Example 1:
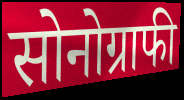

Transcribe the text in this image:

सोनोग्राफी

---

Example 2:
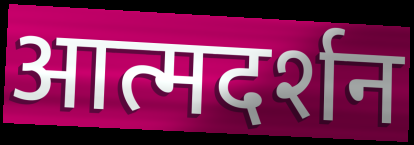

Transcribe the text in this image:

आत्मदर्शन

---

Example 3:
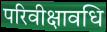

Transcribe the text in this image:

परिवीक्षावधि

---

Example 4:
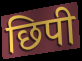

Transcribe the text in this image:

छिपी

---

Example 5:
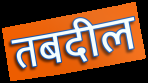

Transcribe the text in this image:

तबदील